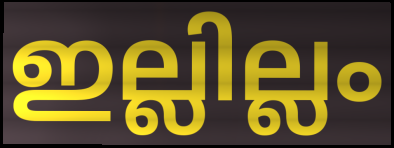
ഇല്ലില്ലം